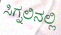
ಸಿಗ್ನಲಿನಲ್ಲಿ